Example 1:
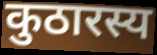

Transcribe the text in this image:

कुठारस्य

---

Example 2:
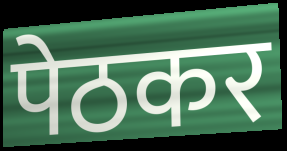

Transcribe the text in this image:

पेठकर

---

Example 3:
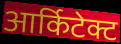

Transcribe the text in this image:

आर्किटेक्ट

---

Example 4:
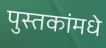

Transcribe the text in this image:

पुस्तकांमधे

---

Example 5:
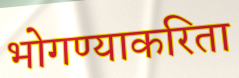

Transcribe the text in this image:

भोगण्याकरिता